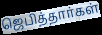
ஜெபித்தார்கள்